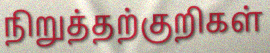
நிறுத்தற்குறிகள்